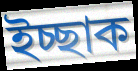
ইচ্ছাক